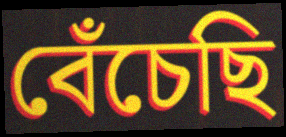
বেঁচেছি